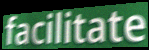
facilitate